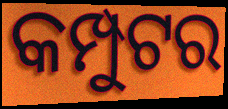
କମ୍ପୁଟର